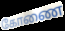
கோணை